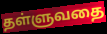
தள்ளுவதை